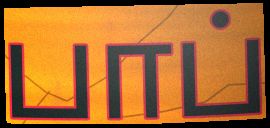
பாப்